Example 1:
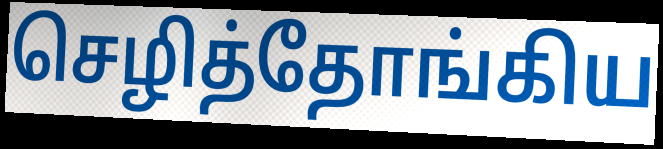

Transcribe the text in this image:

செழித்தோங்கிய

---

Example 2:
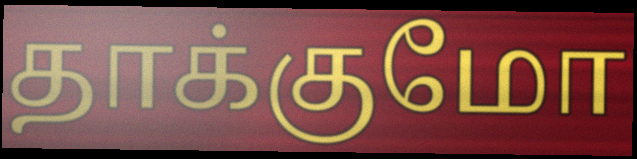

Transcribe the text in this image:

தாக்குமோ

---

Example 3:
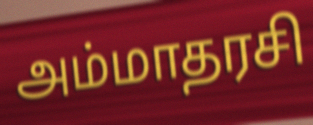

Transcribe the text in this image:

அம்மாதரசி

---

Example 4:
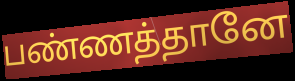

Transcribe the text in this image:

பண்ணத்தானே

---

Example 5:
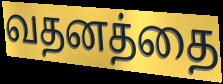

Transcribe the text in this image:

வதனத்தை